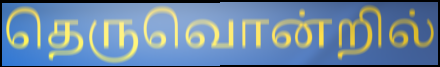
தெருவொன்றில்